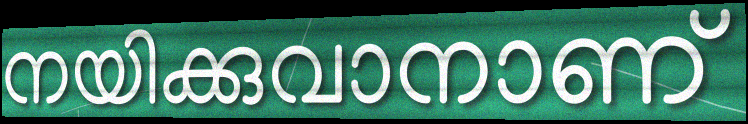
നയിക്കുവാനാണ്